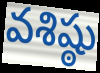
వశిష్ఠు